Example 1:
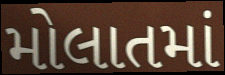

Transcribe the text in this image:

મોલાતમાં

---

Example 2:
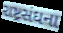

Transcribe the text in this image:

રાષ્ટ્રસંઘના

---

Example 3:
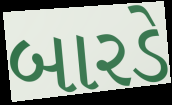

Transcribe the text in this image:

બારડે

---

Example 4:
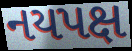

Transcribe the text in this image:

નયપક્ષ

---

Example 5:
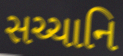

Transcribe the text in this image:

સચ્ચાનિ